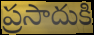
ప్రసాదుకి